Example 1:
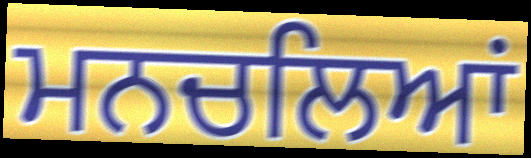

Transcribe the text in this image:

ਮਨਚਲਿਆਂ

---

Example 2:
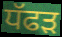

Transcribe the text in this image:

ਧੱਫੜ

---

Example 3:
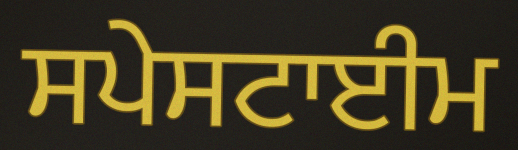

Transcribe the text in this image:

ਸਪੇਸਟਾਈਮ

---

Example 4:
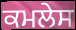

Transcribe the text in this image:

ਕਮਲੇਸ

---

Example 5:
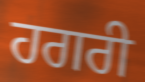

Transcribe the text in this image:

ਹਗਰੀ